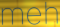
meh